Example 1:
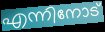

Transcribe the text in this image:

എന്നിനോട്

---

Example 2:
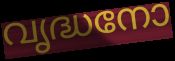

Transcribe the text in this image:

വൃദ്ധനോ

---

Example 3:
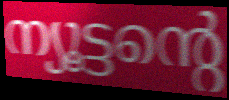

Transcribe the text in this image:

ന്യൂട്ടന്റെ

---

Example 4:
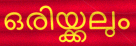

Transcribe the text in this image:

ഒരിയ്ക്കലും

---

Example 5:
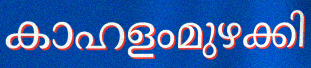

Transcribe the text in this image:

കാഹളംമുഴക്കി